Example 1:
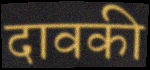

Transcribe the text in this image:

दावकी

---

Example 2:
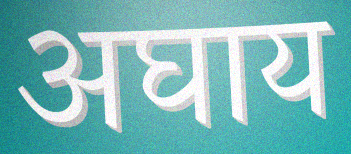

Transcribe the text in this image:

अघाय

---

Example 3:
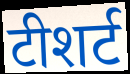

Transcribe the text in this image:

टीशर्ट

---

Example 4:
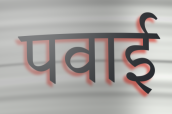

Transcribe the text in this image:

पवाई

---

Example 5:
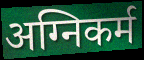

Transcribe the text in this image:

अग्निकर्म